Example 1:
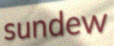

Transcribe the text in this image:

sundew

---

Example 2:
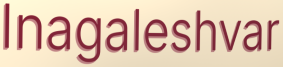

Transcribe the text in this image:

Inagaleshvar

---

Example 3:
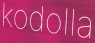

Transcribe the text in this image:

kodolla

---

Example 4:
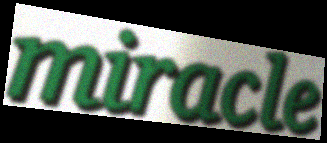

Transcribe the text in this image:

miracle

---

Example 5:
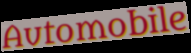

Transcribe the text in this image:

Automobile